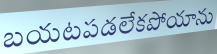
బయటపడలేకపోయాను